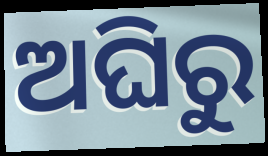
ଅଘିରୁ